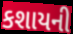
કશાયની